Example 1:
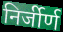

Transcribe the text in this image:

निर्जीर्ण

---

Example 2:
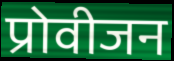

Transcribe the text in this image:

प्रोवीजन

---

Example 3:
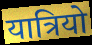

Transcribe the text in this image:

यात्रियो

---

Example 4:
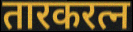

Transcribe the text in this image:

तारकरत्न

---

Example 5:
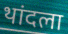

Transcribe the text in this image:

थांदला